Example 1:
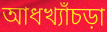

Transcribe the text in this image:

আধখ্যাঁচড়া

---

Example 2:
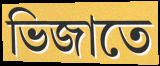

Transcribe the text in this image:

ভিজাতে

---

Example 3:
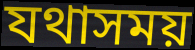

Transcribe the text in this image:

যথাসময়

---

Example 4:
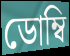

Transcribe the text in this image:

ডোম্বি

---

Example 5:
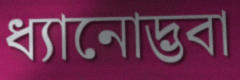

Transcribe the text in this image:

ধ্যানোদ্ভবা